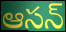
ఆసన్